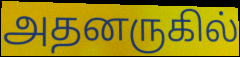
அதனருகில்